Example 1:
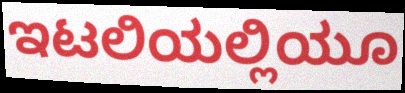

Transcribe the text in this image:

ಇಟಲಿಯಲ್ಲಿಯೂ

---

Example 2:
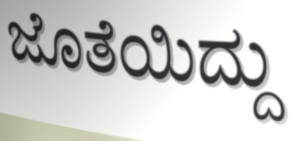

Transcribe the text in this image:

ಜೊತೆಯಿದ್ದು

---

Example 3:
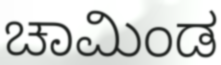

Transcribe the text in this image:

ಚಾಮಿಂಡ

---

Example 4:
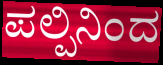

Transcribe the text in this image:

ಪಲ್ಪಿನಿಂದ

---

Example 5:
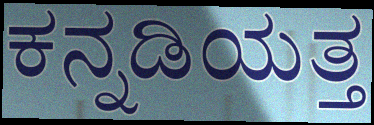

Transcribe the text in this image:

ಕನ್ನಡಿಯತ್ತ